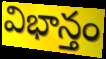
విభాన్తం